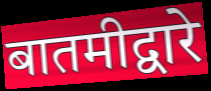
बातमीद्वारे